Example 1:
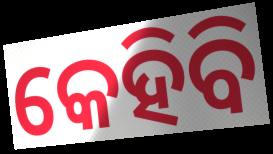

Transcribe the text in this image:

କେହିବି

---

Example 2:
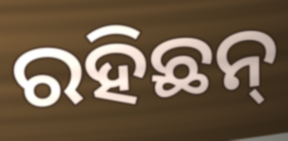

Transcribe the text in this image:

ରହିଛନ୍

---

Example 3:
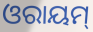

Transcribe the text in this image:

ଓରାୟମ୍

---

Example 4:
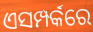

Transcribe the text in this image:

ଏସମ୍ପର୍କରେ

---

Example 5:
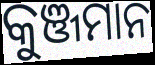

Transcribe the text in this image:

କୁଞ୍ଜମାନ